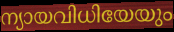
ന്യായവിധിയേയും